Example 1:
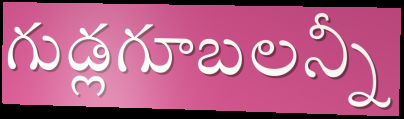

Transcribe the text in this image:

గుడ్లగూబలన్నీ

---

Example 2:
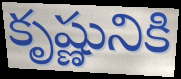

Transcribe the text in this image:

కృష్ణునికి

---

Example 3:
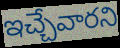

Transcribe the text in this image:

ఇచ్చేవారని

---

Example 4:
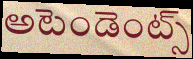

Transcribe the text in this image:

అటెండెంట్స్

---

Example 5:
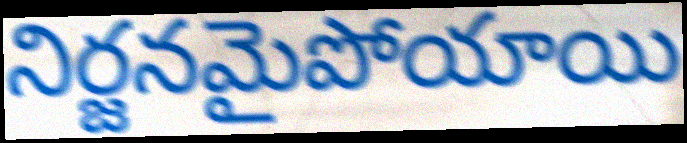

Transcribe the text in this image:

నిర్జనమైపోయాయి